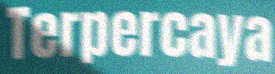
Terpercaya